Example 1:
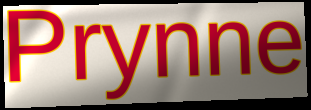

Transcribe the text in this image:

Prynne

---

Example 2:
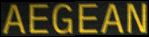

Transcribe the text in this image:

AEGEAN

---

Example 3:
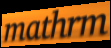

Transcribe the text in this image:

mathrm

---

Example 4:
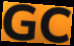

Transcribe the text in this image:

GC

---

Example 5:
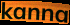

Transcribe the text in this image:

kanna